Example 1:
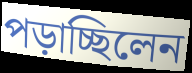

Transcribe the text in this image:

পড়াচ্ছিলেন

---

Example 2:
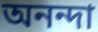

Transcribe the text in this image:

অনন্দা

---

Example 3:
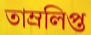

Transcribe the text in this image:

তাম্রলিপ্ত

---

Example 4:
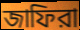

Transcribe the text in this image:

জাফিরা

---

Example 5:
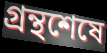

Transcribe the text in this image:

গ্রন্থশেষে